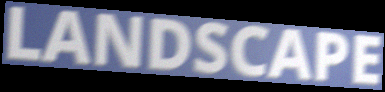
LANDSCAPE